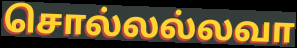
சொல்லல்லவா